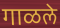
गाळले